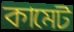
কামেট